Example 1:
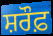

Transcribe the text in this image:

ਸ਼ਰੌਫ਼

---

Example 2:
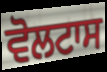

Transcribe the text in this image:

ਵੋਲਟਾਸ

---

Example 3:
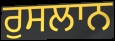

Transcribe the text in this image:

ਰੁਸਲਾਨ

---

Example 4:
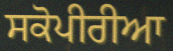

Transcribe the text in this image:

ਸਕੋਪੀਰੀਆ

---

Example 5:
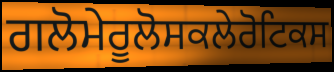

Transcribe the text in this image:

ਗਲੋਮੇਰੂਲੋਸਕਲੇਰੋਟਿਕਸ